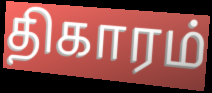
திகாரம்